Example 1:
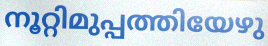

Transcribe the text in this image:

നൂറ്റിമുപ്പത്തിയേഴു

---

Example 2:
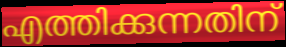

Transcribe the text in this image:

എത്തിക്കുന്നതിന്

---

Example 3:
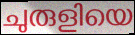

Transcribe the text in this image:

ചുരുളിയെ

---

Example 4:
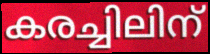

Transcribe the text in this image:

കരച്ചിലിന്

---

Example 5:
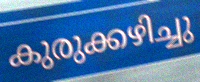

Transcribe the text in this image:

കുരുക്കഴിച്ചു